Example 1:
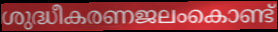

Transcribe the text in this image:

ശുദ്ധീകരണജലംകൊണ്ട്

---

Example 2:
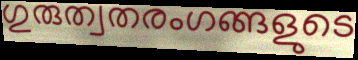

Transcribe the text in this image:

ഗുരുത്വതരംഗങ്ങളുടെ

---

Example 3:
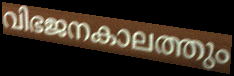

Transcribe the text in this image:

വിഭജനകാലത്തും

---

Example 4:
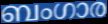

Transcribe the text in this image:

ബംഗാര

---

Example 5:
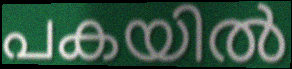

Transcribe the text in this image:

പകയിൽ